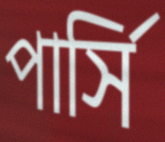
পার্সি